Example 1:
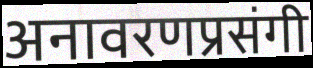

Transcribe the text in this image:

अनावरणप्रसंगी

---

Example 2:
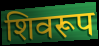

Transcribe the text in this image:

शिवरूप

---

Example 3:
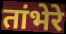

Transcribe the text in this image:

तांभेरे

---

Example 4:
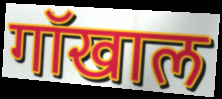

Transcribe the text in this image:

गॉखाल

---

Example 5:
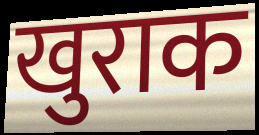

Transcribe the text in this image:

खुराक